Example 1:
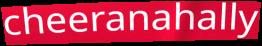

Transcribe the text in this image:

cheeranahally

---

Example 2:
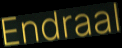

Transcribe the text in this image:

Endraal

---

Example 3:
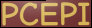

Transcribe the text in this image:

PCEPI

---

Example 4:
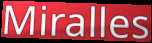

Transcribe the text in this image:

Miralles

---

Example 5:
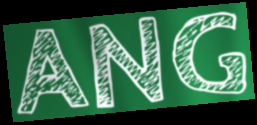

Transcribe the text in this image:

ANG